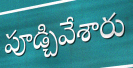
పూడ్చివేశారు